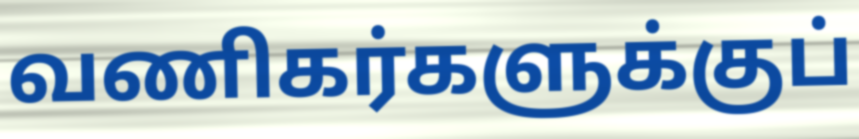
வணிகர்களுக்குப்